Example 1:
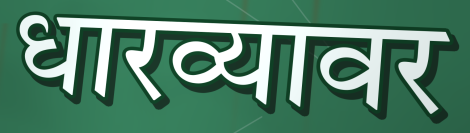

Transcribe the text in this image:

धारव्यावर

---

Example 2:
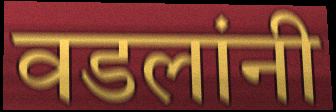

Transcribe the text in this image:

वडलांनी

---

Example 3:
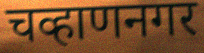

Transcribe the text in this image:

चव्हाणनगर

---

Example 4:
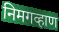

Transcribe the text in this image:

निमगव्हाण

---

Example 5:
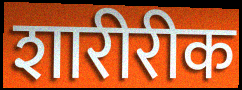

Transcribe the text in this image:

शारीरीक